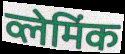
व्लेमिंक